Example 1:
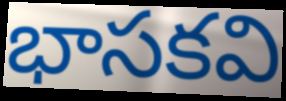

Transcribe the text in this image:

భాసకవి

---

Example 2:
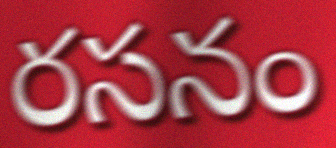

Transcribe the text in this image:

రసనం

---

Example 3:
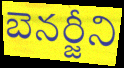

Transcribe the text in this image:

బెనర్జీని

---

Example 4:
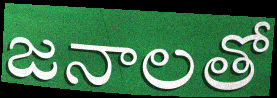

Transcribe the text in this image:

జనాలతో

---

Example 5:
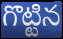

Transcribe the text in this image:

గొట్టిన